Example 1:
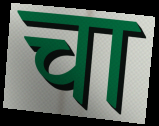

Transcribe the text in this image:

चा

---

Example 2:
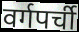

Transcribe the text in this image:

वर्गपर्ची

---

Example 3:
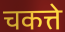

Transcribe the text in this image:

चकत्ते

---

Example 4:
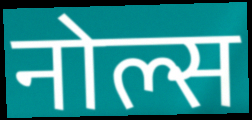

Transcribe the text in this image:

नोल्स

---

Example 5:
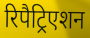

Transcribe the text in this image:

रिपैट्रिएशन